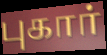
புகார்